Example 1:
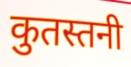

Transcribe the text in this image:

कुतस्तनी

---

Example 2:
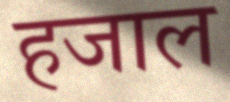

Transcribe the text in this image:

हजाल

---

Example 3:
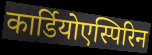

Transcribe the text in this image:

कार्डियोएस्पिरिन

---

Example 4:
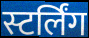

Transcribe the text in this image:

स्‍टर्लिंग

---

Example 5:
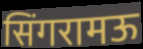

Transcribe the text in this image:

सिंगरामऊ